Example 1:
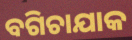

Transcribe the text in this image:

ବଗିଚାଯାକ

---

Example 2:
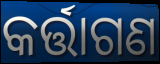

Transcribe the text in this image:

କର୍ତ୍ତାଗଣ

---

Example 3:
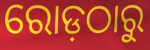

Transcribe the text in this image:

ରୋଡ଼ଠାରୁ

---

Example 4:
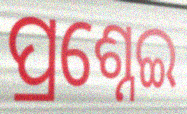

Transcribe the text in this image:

ପ୍ରଶ୍ନେଇ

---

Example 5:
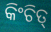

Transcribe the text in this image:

କିଂଚିତ୍